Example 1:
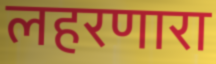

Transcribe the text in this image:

लहरणारा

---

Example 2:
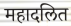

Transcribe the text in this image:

महादलित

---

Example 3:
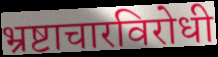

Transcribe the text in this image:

भ्रष्टाचारविरोधी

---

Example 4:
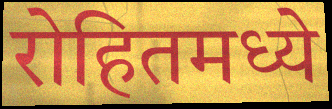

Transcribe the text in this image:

रोहितमध्ये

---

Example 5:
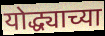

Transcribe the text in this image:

योद्ध्याच्या